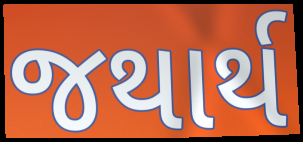
જથાર્થ